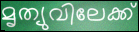
മൃത്യുവിലേക്ക്